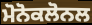
ਮੋਨੋਕਲੋਨਲ